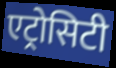
एट्रोसिटी